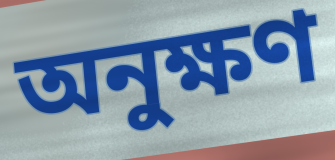
অনুক্ষণ